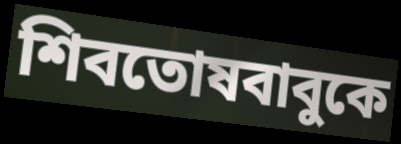
শিবতোষবাবুকে